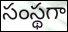
సంస్థగా